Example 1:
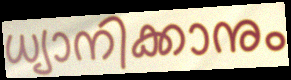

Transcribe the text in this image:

ധ്യാനിക്കാനും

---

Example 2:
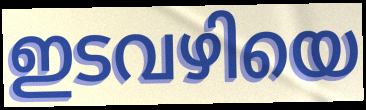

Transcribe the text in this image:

ഇടവഴിയെ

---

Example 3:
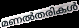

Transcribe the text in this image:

മണൽതരികൾ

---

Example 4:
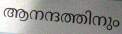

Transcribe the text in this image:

ആനന്ദത്തിനും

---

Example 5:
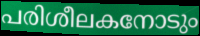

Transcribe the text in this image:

പരിശീലകനോടും